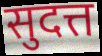
सुदत्त